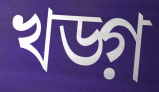
খড়্গ